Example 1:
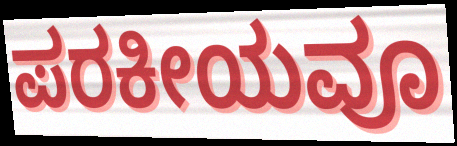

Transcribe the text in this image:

ಪರಕೀಯವೂ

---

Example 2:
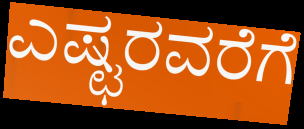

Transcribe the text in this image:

ಎಷ್ಟರವರೆಗೆ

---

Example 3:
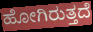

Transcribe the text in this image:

ಹೋಗಿರುತ್ತದೆ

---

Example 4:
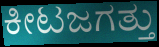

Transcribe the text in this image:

ಕೀಟಜಗತ್ತು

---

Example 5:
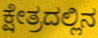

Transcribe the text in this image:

ಕ್ಷೇತ್ರದಲ್ಲಿನ